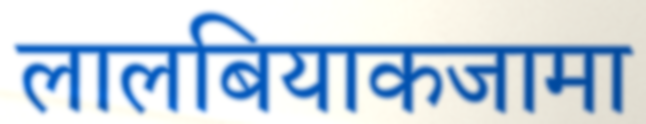
लालबियाकजामा